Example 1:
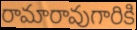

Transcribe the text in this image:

రామారావుగారికి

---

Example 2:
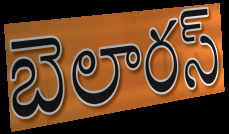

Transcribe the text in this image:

బెలారస్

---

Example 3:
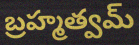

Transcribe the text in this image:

బ్రహ్మత్వమ్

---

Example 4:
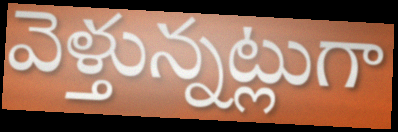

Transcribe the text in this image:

వెళ్తున్నట్లుగా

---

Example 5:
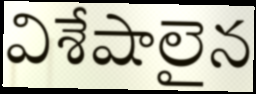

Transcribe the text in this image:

విశేషాలైన